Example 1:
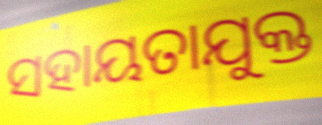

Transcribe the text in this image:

ସହାୟତାଯୁକ୍ତ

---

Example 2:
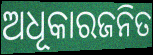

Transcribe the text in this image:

ଅଧୂକାରଜନିତ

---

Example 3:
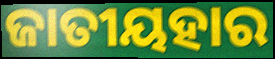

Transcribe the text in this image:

ଜାତୀୟହାର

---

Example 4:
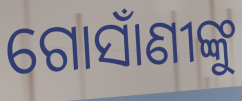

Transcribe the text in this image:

ଗୋସାଁଣୀଙ୍କୁ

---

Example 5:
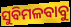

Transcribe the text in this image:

ସୁବିମଳବାବୁ